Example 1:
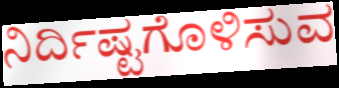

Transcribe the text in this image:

ನಿರ್ದಿಷ್ಟಗೊಳಿಸುವ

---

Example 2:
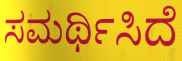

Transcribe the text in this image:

ಸಮರ್ಥಿಸಿದೆ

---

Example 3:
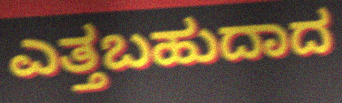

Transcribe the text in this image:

ಎತ್ತಬಹುದಾದ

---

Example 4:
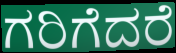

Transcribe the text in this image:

ಗರಿಗೆದರೆ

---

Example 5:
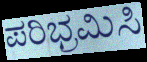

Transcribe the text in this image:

ಪರಿಭ್ರಮಿಸಿ